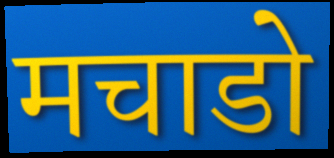
मचाडो